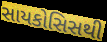
સાયકોસિસથી